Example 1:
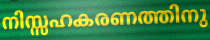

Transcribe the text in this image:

നിസ്സഹകരണത്തിനു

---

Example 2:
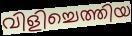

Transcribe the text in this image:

വിളിച്ചെത്തിയ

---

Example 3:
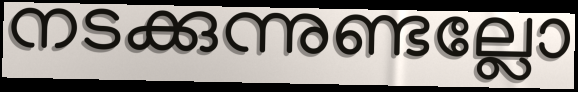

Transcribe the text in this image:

നടക്കുന്നുണ്ടല്ലോ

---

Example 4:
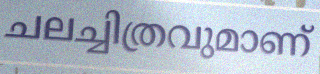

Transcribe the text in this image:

ചലച്ചിത്രവുമാണ്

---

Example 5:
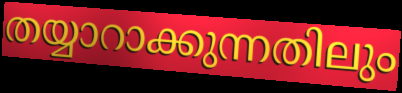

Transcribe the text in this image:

തയ്യാറാക്കുന്നതിലും